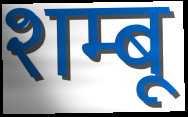
शम्बू